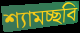
শ্যামচ্ছবি